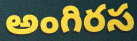
అంగిరస